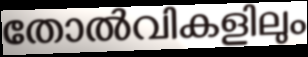
തോൽവികളിലും